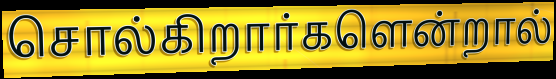
சொல்கிறார்களென்றால்